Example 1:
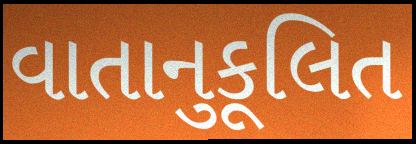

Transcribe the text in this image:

વાતાનુકૂલિત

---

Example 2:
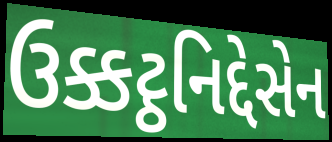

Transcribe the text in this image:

ઉક્કટ્ઠનિદ્દેસેન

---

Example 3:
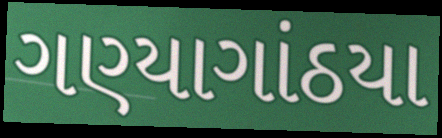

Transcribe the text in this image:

ગણ્યાગાંઠયા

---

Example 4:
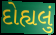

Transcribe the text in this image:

દોહ્યલું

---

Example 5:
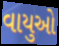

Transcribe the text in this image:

વાયુઓ